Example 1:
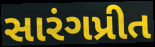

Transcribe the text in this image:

સારંગપ્રીત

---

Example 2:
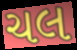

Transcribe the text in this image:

ચલ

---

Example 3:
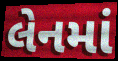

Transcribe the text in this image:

લેનમાં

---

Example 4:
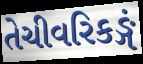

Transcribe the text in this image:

તેચીવરિકઙ્ગં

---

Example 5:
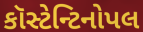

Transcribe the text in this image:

કૉસ્ટેન્ટિનોપલ